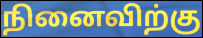
நினைவிற்கு